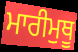
ਮਾਰੀਮੁਥੂ